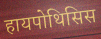
हायपोथिसिस